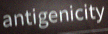
antigenicity